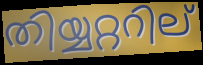
തിയ്യറ്ററില്